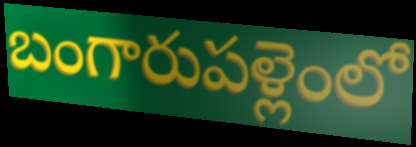
బంగారుపళ్లెంలో